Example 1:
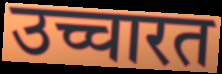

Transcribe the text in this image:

उच्चारत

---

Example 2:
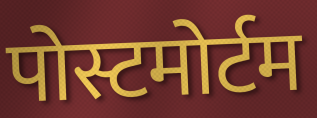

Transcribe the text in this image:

पोस्टमोर्टम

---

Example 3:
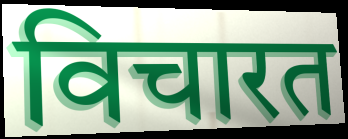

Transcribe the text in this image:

विचारत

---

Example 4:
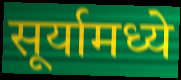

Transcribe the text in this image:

सूर्यामध्ये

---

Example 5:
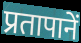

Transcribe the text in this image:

प्रतापानें